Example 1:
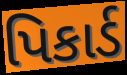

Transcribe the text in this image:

પિકાર્ડ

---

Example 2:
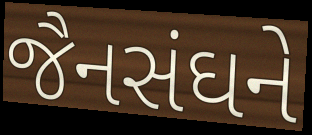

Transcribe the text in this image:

જૈનસંઘને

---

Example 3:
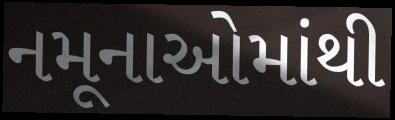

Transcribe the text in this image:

નમૂનાઓમાંથી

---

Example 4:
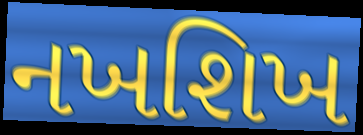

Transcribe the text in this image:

નખશિખ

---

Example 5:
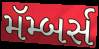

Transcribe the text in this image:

મૅમ્બર્સ